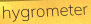
hygrometer